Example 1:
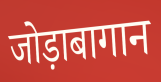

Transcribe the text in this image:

जोड़ाबागान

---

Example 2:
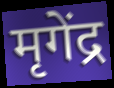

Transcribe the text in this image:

मृगेंद्र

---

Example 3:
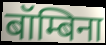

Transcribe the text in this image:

बॉम्बिना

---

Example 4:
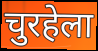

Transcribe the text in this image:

चुरहेला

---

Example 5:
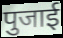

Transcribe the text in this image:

पुजाई